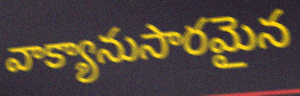
వాక్యానుసారమైన